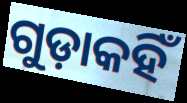
ଗୁଡ଼ାକହିଁ